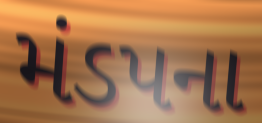
મંડપના